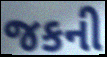
જકની